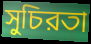
সুচিরতা